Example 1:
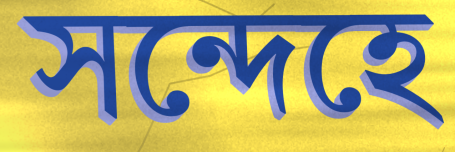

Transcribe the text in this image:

সন্দেহে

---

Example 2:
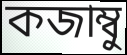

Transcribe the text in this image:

কজাম্বু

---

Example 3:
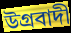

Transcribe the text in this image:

উগ্ৰবাদী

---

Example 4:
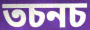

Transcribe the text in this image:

তচনচ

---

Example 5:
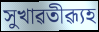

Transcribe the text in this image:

সুখাৱতীৱ্যূহ